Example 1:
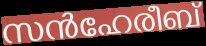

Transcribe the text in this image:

സൻഹേരീബ്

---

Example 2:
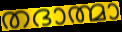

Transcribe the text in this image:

തദാത്മാ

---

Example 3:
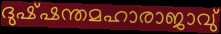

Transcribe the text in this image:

ദുഷ്ഷന്തമഹാരാജാവു്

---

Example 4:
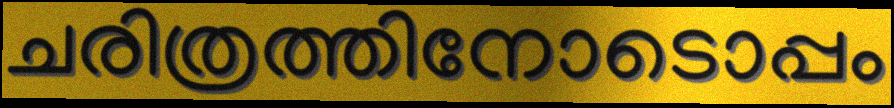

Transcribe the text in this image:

ചരിത്രത്തിനോടൊപ്പം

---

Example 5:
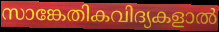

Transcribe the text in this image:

സാങ്കേതികവിദ്യകളാൽ